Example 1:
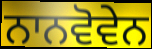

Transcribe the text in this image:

ਨਾਨਵੋਵੇਨ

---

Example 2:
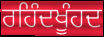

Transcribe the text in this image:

ਰਹਿੰਦਖੂੰਹਦ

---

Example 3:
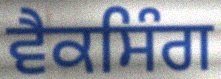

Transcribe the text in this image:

ਵੈਕਸਿੰਗ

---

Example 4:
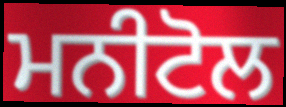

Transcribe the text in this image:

ਮਨੀਟੋਲ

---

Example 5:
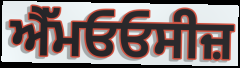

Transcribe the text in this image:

ਐੱਮਓਓਸੀਜ਼